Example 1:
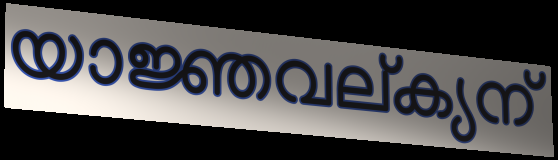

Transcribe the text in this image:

യാജ്ഞവല്ക്യന്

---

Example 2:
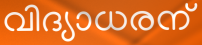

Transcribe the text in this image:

വിദ്യാധരന്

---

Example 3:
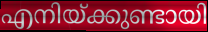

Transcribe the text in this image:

എനിയ്ക്കുണ്ടായി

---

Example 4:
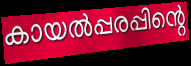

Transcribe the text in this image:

കായൽപ്പരപ്പിന്റെ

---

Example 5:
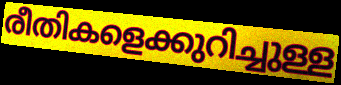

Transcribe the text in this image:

രീതികളെക്കുറിച്ചുള്ള